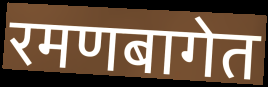
रमणबागेत